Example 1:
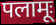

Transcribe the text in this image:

पलामूः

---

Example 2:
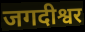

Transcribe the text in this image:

जगदीश्वर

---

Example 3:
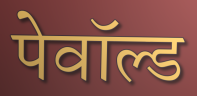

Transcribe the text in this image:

पेवॉल्ड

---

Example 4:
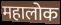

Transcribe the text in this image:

महालोक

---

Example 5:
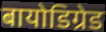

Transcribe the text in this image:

बायोडिग्रेड